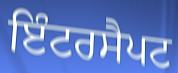
ਇੰਟਰਸੈਪਟ